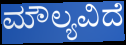
ಮೌಲ್ಯವಿದೆ